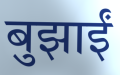
बुझाईं